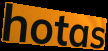
hotas